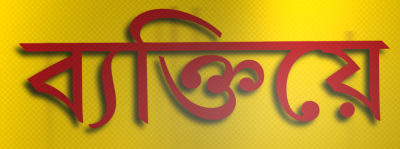
ব্যক্তিয়ে